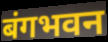
बंगभवन